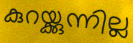
കുറയ്ക്കുന്നില്ല